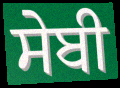
ਸੇਬੀ